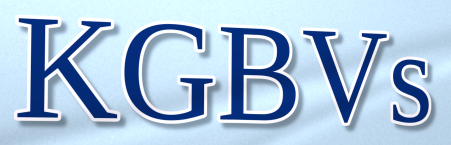
KGBVs